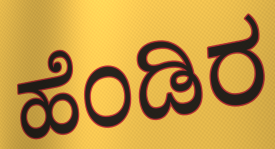
ಹೆಂಡಿರ